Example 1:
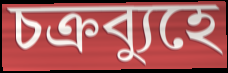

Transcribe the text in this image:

চক্রব্যুহে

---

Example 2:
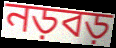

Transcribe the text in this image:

নড়বড়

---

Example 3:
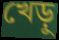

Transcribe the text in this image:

খেড়ু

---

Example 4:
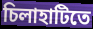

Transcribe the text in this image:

চিলাহাটিতে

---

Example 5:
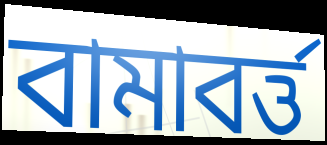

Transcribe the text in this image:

বামাবর্ত্ত